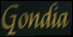
Gondia